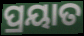
ପ୍ରୟାତ